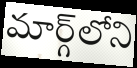
మార్గ్‌లోని